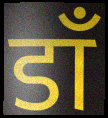
डॉं